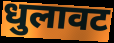
धुलावट